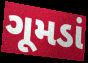
ગૂમડાં